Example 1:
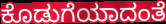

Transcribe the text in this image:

ಕೊಡುಗೆಯಾದಂತೆ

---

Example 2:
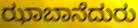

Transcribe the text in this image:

ಝಾಬಾನೆದುರು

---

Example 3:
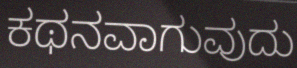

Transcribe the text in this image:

ಕಥನವಾಗುವುದು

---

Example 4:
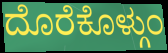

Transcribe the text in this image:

ದೊರೆಕೊಳ್ಗುಂ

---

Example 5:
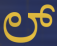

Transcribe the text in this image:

ಲ್